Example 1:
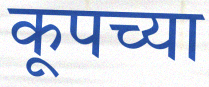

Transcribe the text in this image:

कूपच्या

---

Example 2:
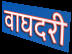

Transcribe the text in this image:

वाघदरी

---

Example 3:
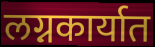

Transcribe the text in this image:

लग्नकार्यात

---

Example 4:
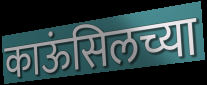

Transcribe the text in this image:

काऊंसिलच्या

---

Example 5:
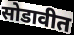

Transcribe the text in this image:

सोडावीत